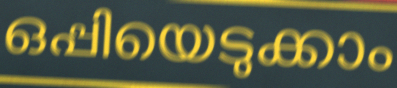
ഒപ്പിയെടുക്കാം